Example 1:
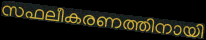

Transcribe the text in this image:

സഫലീകരണത്തിനായി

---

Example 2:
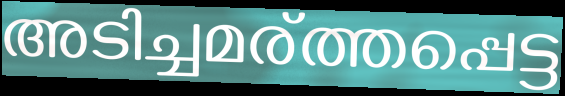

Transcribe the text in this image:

അടിച്ചമര്ത്തപ്പെട്ട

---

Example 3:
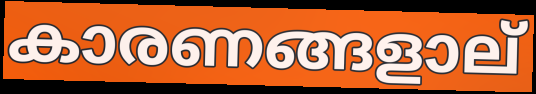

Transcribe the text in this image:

കാരണങ്ങളാല്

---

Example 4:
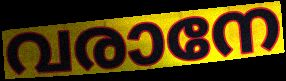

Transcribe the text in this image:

വരാനേ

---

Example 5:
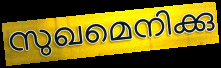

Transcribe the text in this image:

സുഖമെനിക്കു